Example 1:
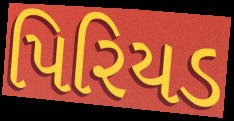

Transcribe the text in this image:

પિરિયડ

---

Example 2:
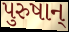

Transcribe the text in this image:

પુરુષાન્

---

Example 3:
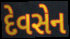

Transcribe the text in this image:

દેવસેન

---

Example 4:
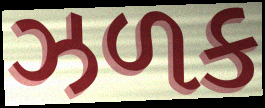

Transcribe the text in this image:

ઝળક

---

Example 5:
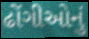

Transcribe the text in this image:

ઢોંગીઓનું